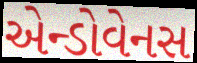
એન્ડોવેનસ